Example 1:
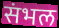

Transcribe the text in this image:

संभल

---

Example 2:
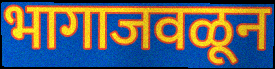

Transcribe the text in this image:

भागाजवळून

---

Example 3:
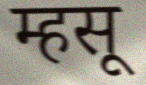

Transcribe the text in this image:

म्हसू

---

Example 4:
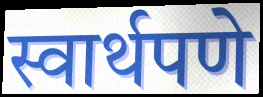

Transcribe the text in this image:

स्वार्थपणे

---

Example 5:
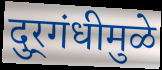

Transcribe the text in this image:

दुर्गंधीमुळे